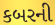
કબરની